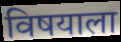
विषयाला